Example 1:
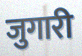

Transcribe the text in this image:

जुगारी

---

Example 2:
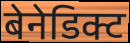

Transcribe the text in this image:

बेनेडिक्ट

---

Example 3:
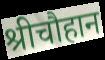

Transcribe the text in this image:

श्रीचौहान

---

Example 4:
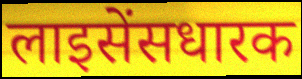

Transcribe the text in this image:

लाइसेंसधारक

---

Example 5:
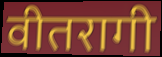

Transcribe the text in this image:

वीतरागी